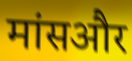
मांसऔर